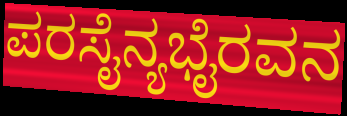
ಪರಸೈನ್ಯಭೈರವನ